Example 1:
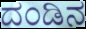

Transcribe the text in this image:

ದಂಡಿನ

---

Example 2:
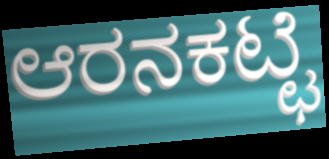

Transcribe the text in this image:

ಆರನಕಟ್ಟೆ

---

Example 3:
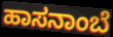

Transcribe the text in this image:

ಹಾಸನಾಂಬೆ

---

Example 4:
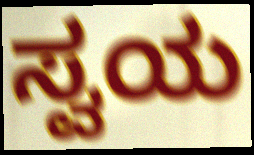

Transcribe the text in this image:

ಸ್ವಯ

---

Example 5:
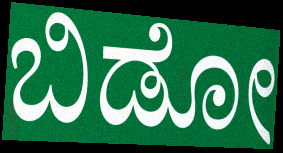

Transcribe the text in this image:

ಬಿಡೋ